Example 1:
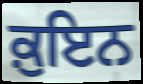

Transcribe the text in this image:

ਕ਼ੁਇਨ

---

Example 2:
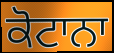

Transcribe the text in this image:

ਕੋਟਾਨਾ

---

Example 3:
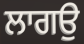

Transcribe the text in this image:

ਲਾਗਉ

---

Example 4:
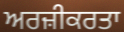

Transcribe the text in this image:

ਅਰਜ਼ੀਕਰਤਾ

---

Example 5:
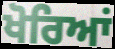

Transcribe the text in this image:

ਖੋਰਿਆਂ